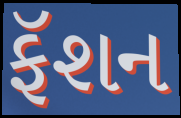
ફૅશન